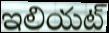
ఇలియట్